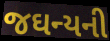
જઘન્યની